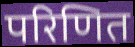
परिणित